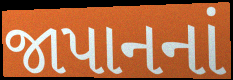
જાપાનનાં